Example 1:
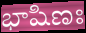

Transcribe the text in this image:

భాషిణః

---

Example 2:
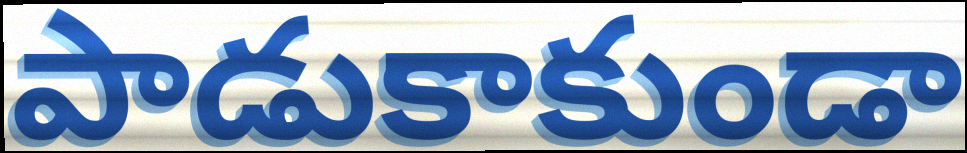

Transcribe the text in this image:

పాడుకాకుండా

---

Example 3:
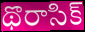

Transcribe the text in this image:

థొరాసిక్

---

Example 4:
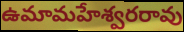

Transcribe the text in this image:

ఉమామహేశ్వరరావు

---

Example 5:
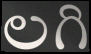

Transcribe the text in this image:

లగి